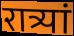
रात्र्यां